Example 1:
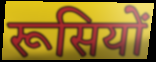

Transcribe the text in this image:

रूसियों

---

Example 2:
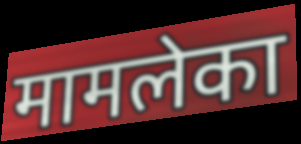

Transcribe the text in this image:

मामलेका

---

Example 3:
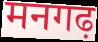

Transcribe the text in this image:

मनगढ़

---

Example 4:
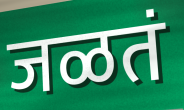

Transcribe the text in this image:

जळतं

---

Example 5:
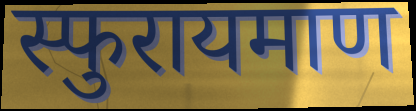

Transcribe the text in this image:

स्फुरायमाण